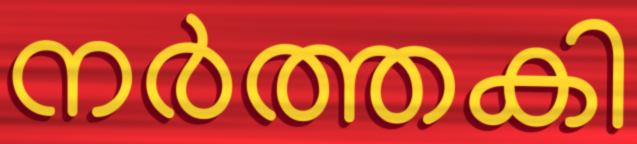
നർത്തകി